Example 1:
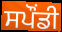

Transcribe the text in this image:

ਸਪੌਂਡੀ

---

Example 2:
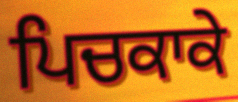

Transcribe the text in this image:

ਪਿਚਕਾਕੇ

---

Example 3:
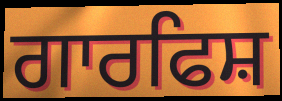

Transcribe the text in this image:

ਗਾਰਫਿਸ਼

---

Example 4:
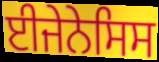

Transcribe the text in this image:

ਈਜੇਨੇਸਿਸ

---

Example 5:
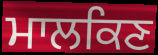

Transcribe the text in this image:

ਮਾਲਕਿਣ